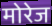
मोरेज